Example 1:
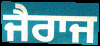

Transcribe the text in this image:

ਜੈਰਾਜ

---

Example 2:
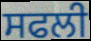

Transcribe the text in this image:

ਸਫਲੀ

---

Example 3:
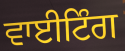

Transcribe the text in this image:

ਵਾਈਟਿੰਗ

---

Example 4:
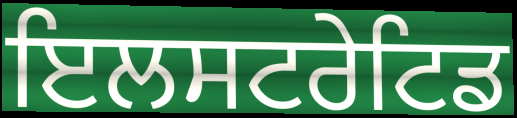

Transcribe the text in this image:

ਇਲਸਟਰੇਟਿਡ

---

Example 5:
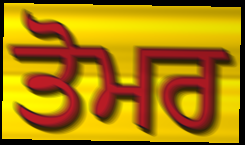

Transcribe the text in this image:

ਤੋਮਰ